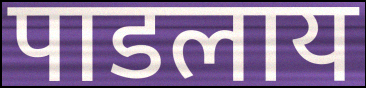
पाडलाय